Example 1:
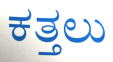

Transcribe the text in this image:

ಕತ್ತಲು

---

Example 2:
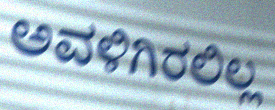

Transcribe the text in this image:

ಅವಳಿಗಿರಲಿಲ್ಲ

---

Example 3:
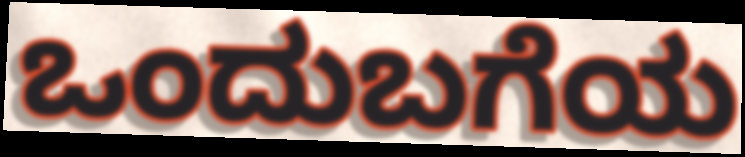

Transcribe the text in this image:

ಒಂದುಬಗೆಯ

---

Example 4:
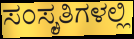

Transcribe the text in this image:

ಸಂಸ್ಕೃತಿಗಳಲ್ಲಿ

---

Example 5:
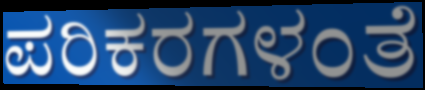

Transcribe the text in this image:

ಪರಿಕರಗಳಂತೆ